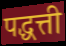
पद्धत्ती